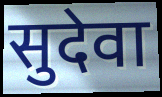
सुदेवा